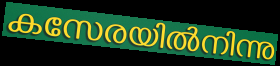
കസേരയിൽനിന്നു